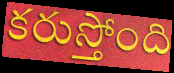
కరుస్తోంది